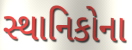
સ્થાનિકોના